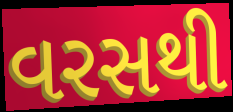
વરસથી